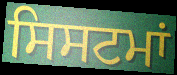
ਸਿਸਟਮਾਂ